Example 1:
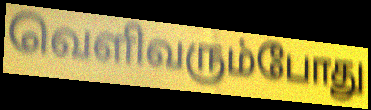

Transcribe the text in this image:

வெளிவரும்போது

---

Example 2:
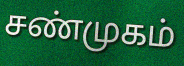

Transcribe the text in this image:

சண்முகம்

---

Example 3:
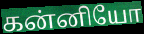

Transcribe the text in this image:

கன்னியோ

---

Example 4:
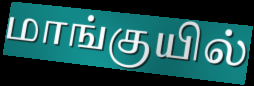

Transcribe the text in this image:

மாங்குயில்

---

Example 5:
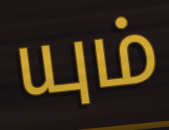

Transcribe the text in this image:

யும்